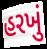
હરખું